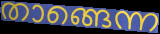
താങ്ങെന്ന